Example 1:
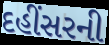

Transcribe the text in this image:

દહીંસરની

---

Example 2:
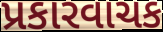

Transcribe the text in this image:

પ્રકારવાચક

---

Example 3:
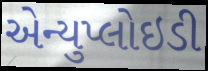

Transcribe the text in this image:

એન્યુપ્લોઇડી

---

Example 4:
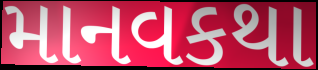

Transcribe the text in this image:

માનવકથા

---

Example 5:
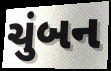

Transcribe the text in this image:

ચુંબન